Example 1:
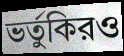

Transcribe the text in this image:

ভর্তুকিরও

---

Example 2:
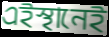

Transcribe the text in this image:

এইস্থানেই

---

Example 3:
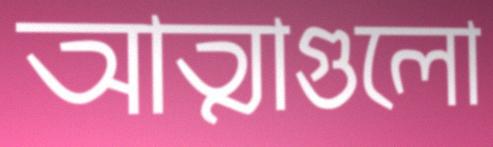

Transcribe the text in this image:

আত্মাগুলো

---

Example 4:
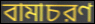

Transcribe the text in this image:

বামাচরণ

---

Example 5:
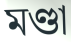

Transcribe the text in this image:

মণ্ডা